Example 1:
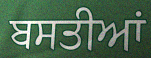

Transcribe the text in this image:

ਬਸਤੀਆਂ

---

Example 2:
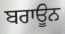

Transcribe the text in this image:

ਬਰਾਊਨ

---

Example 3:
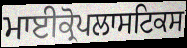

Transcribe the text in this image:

ਮਾਈਕ੍ਰੋਪਲਾਸਟਿਕਸ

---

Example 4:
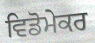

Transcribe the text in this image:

ਵਿਡੋਮੇਕਰ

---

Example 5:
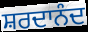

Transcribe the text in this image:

ਸ਼ਰਦਾਨੰਦ